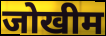
जोखीम